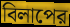
বিলাপের